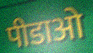
पीडाओ